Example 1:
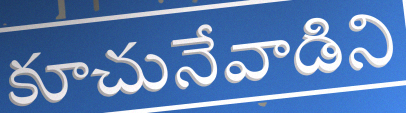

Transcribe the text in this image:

కూచునేవాడిని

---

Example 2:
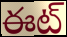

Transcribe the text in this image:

ఈట్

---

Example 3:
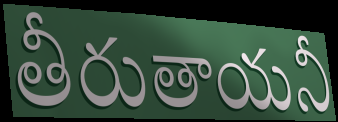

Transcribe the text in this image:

తీరుతాయనీ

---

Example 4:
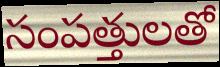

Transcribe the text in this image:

సంపత్తులతో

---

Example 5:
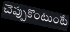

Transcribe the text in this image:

చెప్పుకొంటుంటే